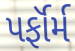
પર્ફૉર્મ